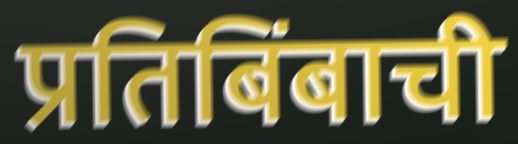
प्रतिबिंबाची